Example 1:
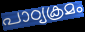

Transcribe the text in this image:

പാഠ്യക്രമം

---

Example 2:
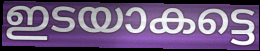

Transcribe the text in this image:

ഇടയാകട്ടെ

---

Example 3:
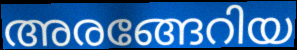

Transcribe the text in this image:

അരങ്ങേറിയ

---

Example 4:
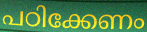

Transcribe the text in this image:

പഠിക്കേണം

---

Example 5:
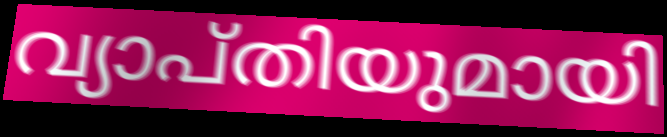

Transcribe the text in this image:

വ്യാപ്തിയുമായി